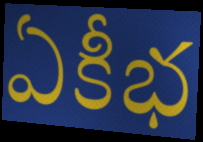
ఏకీభ